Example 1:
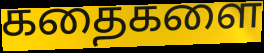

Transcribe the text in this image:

கதைகளை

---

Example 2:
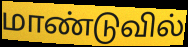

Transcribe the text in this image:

மாண்டுவில்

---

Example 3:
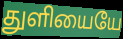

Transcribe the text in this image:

துளியையே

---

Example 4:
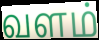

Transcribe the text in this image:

வளம்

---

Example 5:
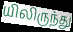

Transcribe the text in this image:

யிலிருந்து